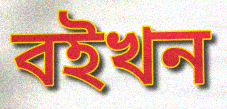
বইখন